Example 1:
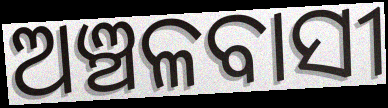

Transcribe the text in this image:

ଅଞ୍ଚଳବାସୀ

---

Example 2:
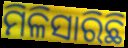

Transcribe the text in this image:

ମିଳିସାରିଛି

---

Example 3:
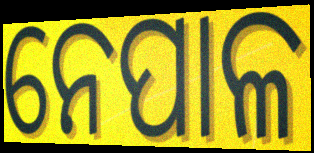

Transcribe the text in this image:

ନେପାଳ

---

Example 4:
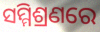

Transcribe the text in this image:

ସମ୍ମିଶ୍ରଣରେ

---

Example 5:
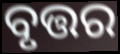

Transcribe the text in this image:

ବୃତ୍ତର